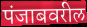
पंजाबवरील